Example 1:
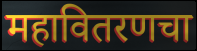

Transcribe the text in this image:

महावितरणचा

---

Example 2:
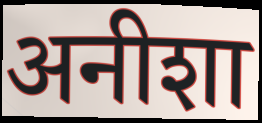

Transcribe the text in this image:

अनीशा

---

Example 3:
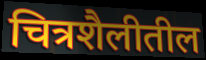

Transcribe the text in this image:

चित्रशैलीतील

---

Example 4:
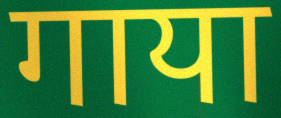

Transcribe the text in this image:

गाया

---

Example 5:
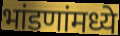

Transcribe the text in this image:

भांडणांमध्ये